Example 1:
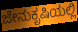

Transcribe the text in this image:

ಜೇನುಕೃಷಿಯಲ್ಲಿ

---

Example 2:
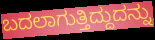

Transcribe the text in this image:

ಬದಲಾಗುತ್ತಿದ್ದುದನ್ನು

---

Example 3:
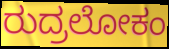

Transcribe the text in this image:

ರುದ್ರಲೋಕಂ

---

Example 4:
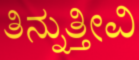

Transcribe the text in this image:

ತಿನ್ನುತ್ತೀವಿ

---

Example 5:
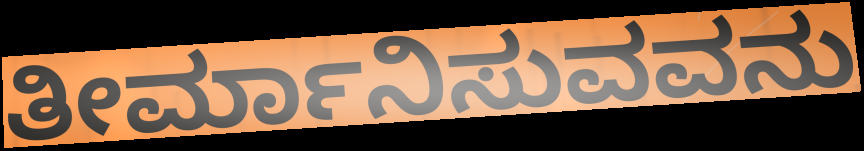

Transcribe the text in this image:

ತೀರ್ಮಾನಿಸುವವನು